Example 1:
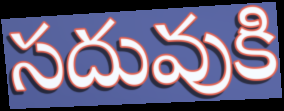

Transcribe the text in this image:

సదువుకి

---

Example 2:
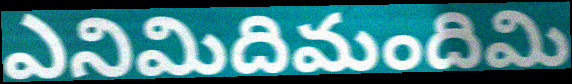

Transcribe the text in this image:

ఎనిమిదిమందిమి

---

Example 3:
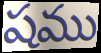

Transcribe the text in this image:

షము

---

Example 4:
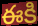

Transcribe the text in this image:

ఈకి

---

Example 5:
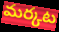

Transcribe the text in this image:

మర్కట